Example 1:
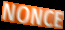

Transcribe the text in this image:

NONCE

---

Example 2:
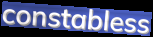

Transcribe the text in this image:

constabless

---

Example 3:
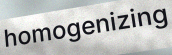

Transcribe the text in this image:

homogenizing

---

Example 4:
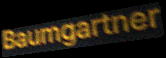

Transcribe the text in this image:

Baumgartner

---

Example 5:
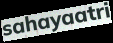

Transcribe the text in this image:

sahayaatri